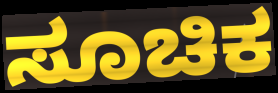
ಸೂಚಿಕ